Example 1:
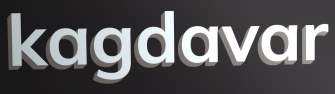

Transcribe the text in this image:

kagdavar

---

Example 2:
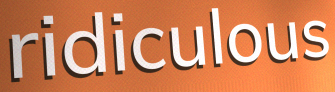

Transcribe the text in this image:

ridiculous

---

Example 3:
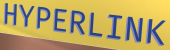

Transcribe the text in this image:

HYPERLINK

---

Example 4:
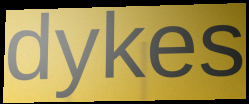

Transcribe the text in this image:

dykes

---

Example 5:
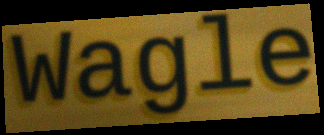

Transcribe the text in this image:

Wagle